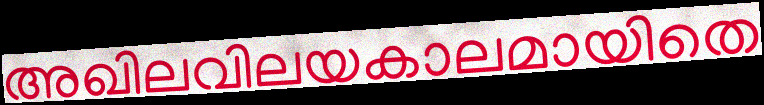
അഖിലവിലയകാലമായിതെ